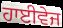
ਹਾਈਵੇਜ